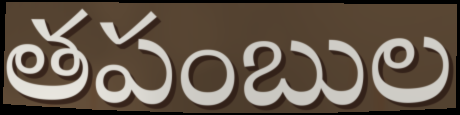
తపంబుల